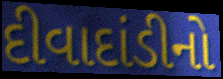
દીવાદાંડીનો